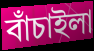
বাঁচাইলা